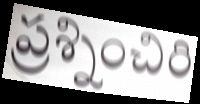
ప్రశ్నించిరి